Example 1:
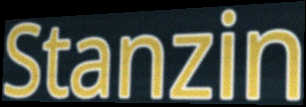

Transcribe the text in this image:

Stanzin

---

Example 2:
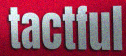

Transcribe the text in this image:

tactful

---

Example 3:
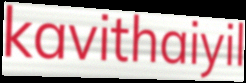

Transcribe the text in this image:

kavithaiyil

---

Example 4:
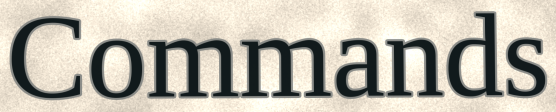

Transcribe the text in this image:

Commands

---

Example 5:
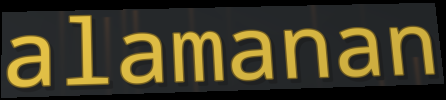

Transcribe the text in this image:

alamanan